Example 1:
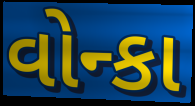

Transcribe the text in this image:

વોન્કા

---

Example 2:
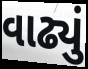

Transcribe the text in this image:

વાઢ્યું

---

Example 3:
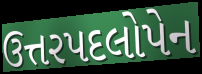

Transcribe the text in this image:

ઉત્તરપદલોપેન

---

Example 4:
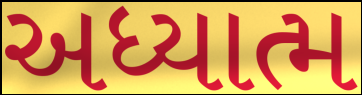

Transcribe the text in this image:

અધ્યાત્મ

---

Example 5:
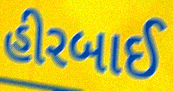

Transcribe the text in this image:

હીરબાઈ